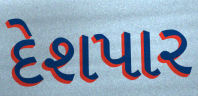
દેશપાર